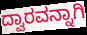
ದ್ವಾರವನ್ನಾಗಿ